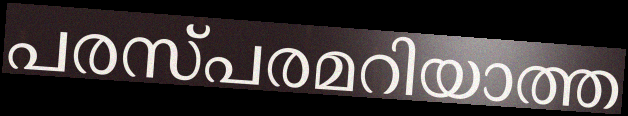
പരസ്പരമറിയാത്ത